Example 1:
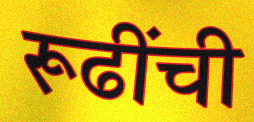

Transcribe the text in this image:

रूढींची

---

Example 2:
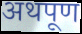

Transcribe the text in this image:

अथपूण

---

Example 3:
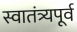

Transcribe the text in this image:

स्वातंत्र्यपूर्व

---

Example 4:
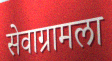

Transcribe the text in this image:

सेवाग्रामला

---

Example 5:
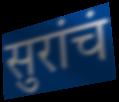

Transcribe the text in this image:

सुरांचं